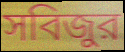
সবিজুর